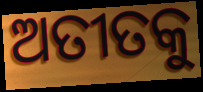
ଅତୀତକୁ